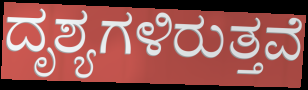
ದೃಶ್ಯಗಳಿರುತ್ತವೆ